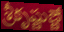
శ్రీకృష్ణుణ్ణే